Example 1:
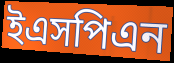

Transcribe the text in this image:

ইএসপিএন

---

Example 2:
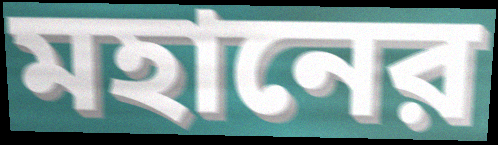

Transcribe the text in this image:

মহানের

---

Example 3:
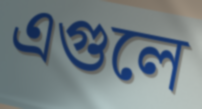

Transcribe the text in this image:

এগুলে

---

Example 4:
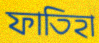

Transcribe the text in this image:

ফাতিহা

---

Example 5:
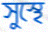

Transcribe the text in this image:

সুস্থে